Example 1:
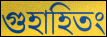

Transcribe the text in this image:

গুহাহিতং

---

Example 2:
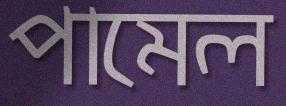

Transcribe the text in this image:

পামেল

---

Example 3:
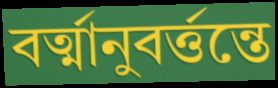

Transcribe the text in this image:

বর্ত্মানুবর্ত্তন্তে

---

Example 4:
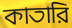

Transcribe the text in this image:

কাতারি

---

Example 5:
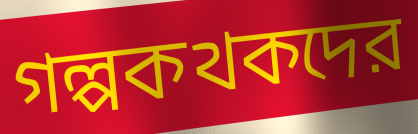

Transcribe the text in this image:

গল্পকথকদের